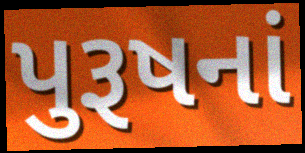
પુરૂષનાં